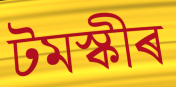
টমস্কীৰ